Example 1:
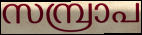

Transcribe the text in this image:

സമ്പ്രാപ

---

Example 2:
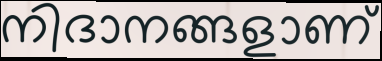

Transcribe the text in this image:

നിദാനങ്ങളാണ്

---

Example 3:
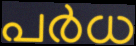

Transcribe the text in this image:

പർധ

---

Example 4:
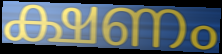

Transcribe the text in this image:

ക്ഷണം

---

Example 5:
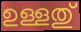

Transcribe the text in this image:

ഉള്ളതു്